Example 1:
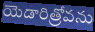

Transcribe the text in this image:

యెడారిత్రోవను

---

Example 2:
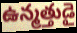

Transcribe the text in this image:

ఉన్మత్తుడై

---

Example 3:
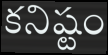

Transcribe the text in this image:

కనిష్టం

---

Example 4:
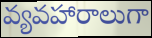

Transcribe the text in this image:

వ్యవహారాలుగా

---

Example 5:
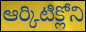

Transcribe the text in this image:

ఆర్కిటిక్లోని